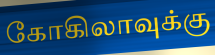
கோகிலாவுக்கு